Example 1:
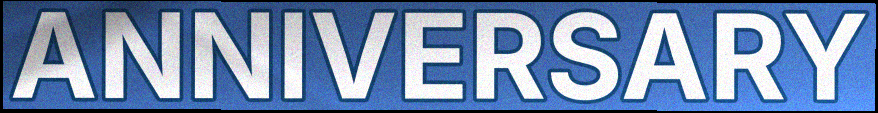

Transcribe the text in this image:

ANNIVERSARY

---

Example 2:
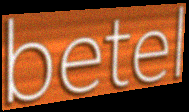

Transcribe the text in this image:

betel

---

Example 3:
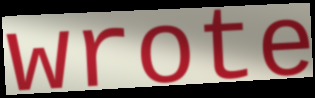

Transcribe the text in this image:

wrote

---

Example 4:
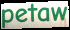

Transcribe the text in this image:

petaw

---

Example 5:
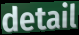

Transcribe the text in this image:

detail